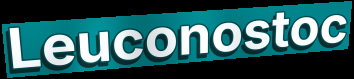
Leuconostoc